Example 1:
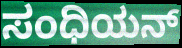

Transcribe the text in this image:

ಸಂಧಿಯನ್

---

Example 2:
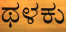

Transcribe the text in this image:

ಥಳಕು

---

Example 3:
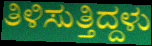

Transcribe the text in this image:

ತಿಳಿಸುತ್ತಿದ್ದಳು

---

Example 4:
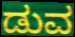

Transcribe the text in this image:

ಡುವ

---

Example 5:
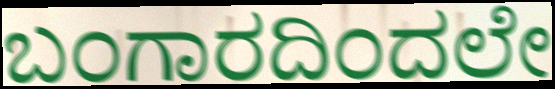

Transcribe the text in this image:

ಬಂಗಾರದಿಂದಲೇ